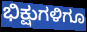
ಭಿಕ್ಷುಗಳಿಗೂ